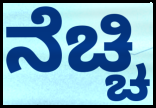
ನೆಚ್ಚಿ